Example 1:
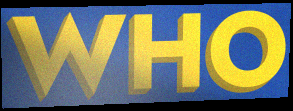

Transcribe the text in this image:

WHO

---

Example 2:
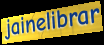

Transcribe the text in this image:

jainelibrar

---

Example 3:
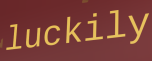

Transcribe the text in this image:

luckily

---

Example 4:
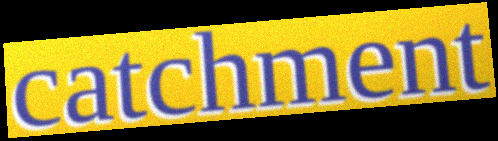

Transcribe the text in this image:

catchment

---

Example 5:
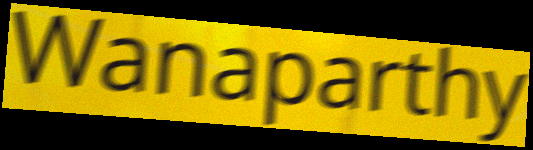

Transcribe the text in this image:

Wanaparthy